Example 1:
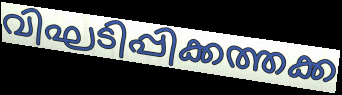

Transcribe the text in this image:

വിഘടിപ്പിക്കത്തക്ക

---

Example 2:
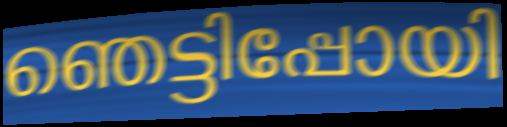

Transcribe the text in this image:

ഞെട്ടിപ്പോയി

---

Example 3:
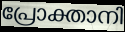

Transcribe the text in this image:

പ്രോക്താനി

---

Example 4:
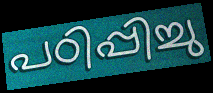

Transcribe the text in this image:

പഠിപ്പിച്ചു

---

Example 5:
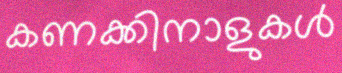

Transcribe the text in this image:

കണക്കിനാളുകൾ